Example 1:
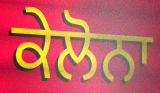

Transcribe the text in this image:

ਕੇਲੋਨਾ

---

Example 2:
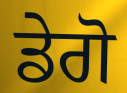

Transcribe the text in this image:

ਡੇਗੋ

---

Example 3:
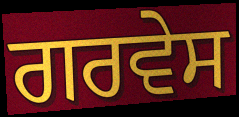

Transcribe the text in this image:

ਗਰਵੇਸ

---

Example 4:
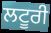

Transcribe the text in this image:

ਲਟੂਰੀ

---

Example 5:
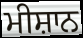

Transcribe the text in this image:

ਮੀਸ਼ਾਨ